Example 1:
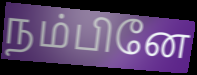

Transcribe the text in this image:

நம்பினே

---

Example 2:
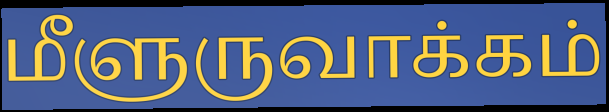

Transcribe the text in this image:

மீளுருவாக்கம்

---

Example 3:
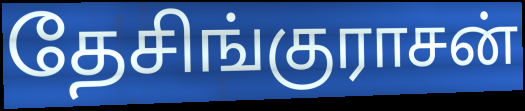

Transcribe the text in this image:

தேசிங்குராசன்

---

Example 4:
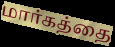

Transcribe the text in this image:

மார்கத்தை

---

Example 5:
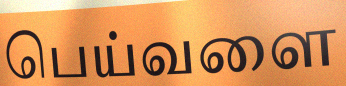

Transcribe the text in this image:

பெய்வளை